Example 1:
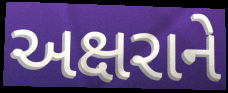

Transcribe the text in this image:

અક્ષરાને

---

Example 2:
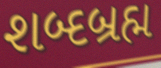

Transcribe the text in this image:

શબ્દબ્રહ્મ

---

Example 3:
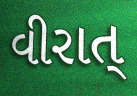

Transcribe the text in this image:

વીરાત્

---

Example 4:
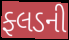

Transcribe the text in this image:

ફ્લડની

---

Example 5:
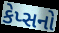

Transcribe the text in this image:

કેપ્સનો